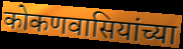
कोकणवासियांच्या